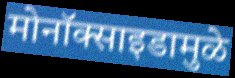
मोनॉक्साइडामुळे